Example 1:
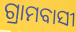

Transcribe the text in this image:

ଗ୍ରାମବାସୀ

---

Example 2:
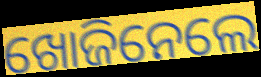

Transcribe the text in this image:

ଖୋଜିନେଲେ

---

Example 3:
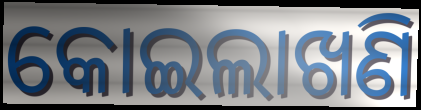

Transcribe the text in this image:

କୋଇଲାଖଣି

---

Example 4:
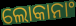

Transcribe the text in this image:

ଲୋକାନାଂ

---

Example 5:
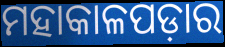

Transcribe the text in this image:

ମହାକାଳପଡ଼ାର